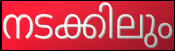
നടക്കിലും